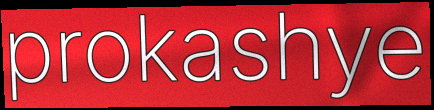
prokashye